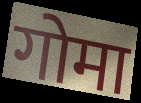
गोमा